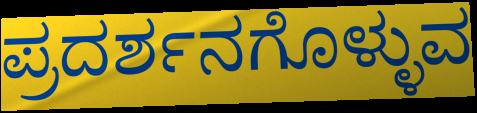
ಪ್ರದರ್ಶನಗೊಳ್ಳುವ